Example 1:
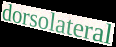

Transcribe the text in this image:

dorsolateral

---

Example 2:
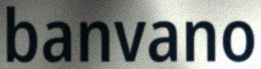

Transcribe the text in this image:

banvano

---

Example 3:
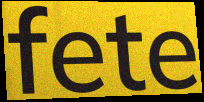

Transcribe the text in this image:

fete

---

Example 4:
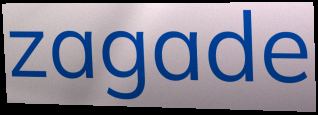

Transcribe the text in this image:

zagade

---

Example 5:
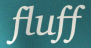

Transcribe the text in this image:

fluff